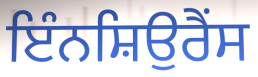
ਇੰਨਸ਼ਿਉਰੈਂਸ